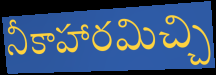
నీకాహారమిచ్చి